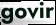
govir